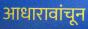
आधारावांचून